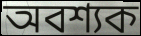
অবশ্যক